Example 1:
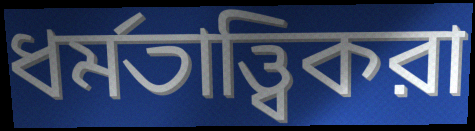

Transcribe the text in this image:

ধর্মতাত্ত্বিকরা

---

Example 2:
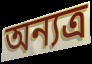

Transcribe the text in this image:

অন্যত্র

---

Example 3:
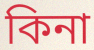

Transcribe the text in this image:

কিনা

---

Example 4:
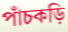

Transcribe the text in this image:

পাঁচকড়ি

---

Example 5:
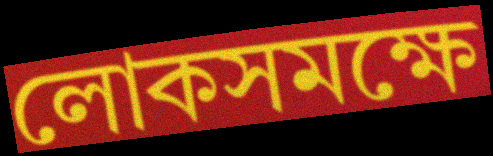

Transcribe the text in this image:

লোকসমক্ষে